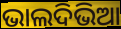
ଭାଲଦିଭିଆ